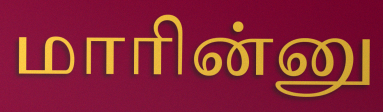
மாரின்னு